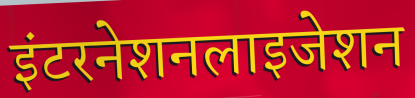
इंटरनेशनलाइजेशन